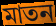
মাতন